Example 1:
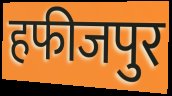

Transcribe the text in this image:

हफीजपुर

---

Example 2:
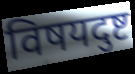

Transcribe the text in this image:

विषयदुष्ट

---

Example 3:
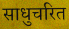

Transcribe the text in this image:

साधुचरित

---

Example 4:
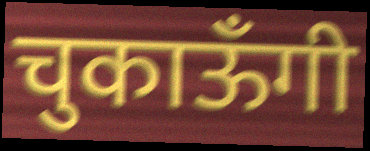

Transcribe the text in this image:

चुकाऊँगी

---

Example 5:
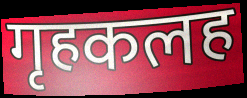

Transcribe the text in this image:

गृहकलह